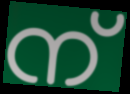
ന്